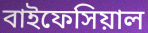
বাইফেসিয়াল